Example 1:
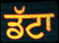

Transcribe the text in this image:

ਡੱਟਾ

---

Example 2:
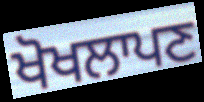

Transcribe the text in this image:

ਖੋਖਲਾਪਣ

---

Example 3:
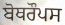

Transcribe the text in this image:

ਬੋਥਰੌਪਸ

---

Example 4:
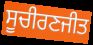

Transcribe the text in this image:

ਸੂਚੀਰਣਜੀਤ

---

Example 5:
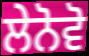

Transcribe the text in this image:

ਲੇਨੋਵੋ